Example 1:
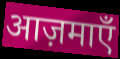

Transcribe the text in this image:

आज़माएँ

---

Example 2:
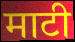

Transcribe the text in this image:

माटी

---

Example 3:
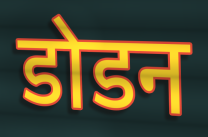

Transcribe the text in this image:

डोडन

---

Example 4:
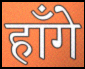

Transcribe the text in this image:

हाँगे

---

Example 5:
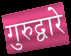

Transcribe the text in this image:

गुरुद्वारे